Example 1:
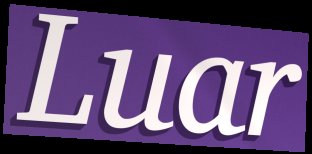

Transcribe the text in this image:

Luar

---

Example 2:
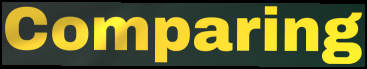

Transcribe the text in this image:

Comparing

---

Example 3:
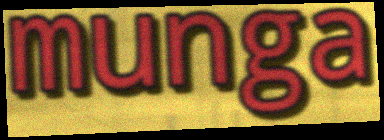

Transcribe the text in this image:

munga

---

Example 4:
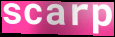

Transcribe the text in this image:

scarp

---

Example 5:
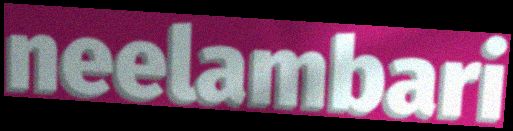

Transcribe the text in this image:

neelambari